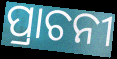
ପ୍ରାଚନୀ